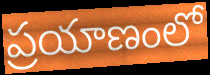
ప్రయాణంలో